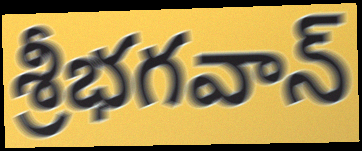
శ్రీభగవాన్